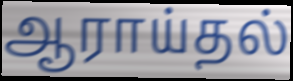
ஆராய்தல்